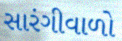
સારંગીવાળો